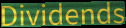
Dividends